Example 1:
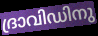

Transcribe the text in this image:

ദ്രാവിഡിനു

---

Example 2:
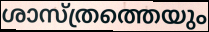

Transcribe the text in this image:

ശാസ്ത്രത്തെയും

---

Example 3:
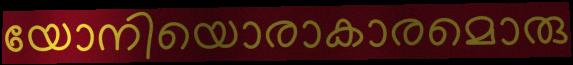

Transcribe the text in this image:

യോനിയൊരാകാരമൊരു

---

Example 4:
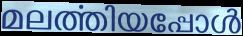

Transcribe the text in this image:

മലൎത്തിയപ്പോൾ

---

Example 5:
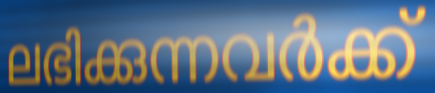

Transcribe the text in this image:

ലഭിക്കുന്നവർക്ക്